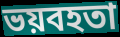
ভয়বহতা